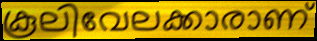
കൂലിവേലക്കാരാണ്